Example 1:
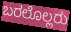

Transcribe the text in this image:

ಬರಲೊಲ್ಲರು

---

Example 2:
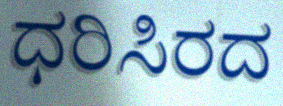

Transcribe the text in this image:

ಧರಿಸಿರದ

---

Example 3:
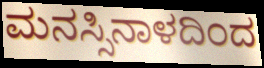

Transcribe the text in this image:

ಮನಸ್ಸಿನಾಳದಿಂದ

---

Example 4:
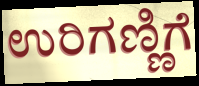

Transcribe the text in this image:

ಉರಿಗಣ್ಣಿಗೆ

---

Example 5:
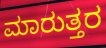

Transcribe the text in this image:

ಮಾರುತ್ತರ